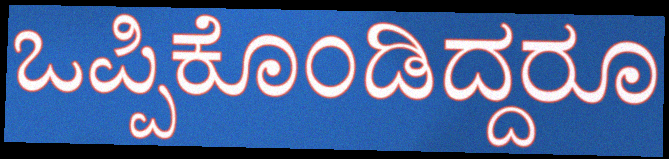
ಒಪ್ಪಿಕೊಂಡಿದ್ದರೂ